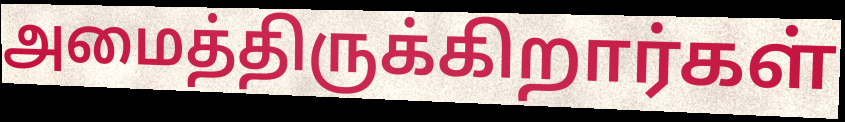
அமைத்திருக்கிறார்கள்